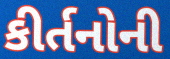
કીર્તનોની